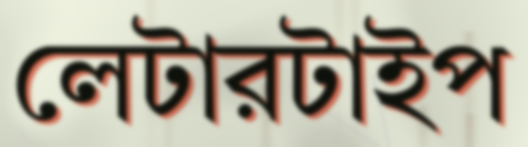
লেটারটাইপ